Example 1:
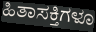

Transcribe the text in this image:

ಹಿತಾಸಕ್ತಿಗಳೂ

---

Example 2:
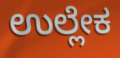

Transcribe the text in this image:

ಉಲ್ಲೇಕ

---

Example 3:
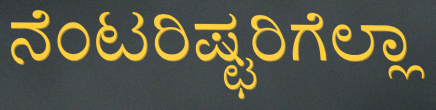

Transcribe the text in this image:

ನೆಂಟರಿಷ್ಟರಿಗೆಲ್ಲಾ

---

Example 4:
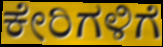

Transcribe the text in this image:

ಕೇರಿಗಳಿಗೆ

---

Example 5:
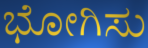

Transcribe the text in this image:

ಭೋಗಿಸು